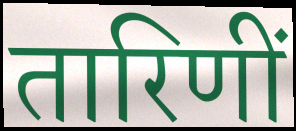
तारिणीं